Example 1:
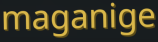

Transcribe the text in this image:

maganige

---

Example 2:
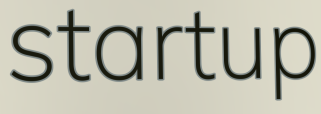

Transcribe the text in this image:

startup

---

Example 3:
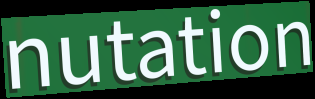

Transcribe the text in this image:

nutation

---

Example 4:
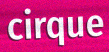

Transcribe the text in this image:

cirque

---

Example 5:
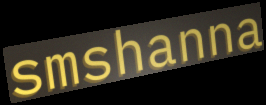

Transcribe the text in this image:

smshanna